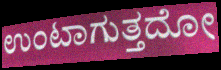
ಉಂಟಾಗುತ್ತದೋ